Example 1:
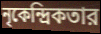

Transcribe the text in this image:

নৃকেন্দ্রিকতার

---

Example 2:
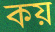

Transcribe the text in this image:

কয়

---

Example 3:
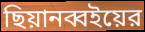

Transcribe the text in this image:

ছিয়ানব্বইয়ের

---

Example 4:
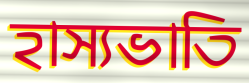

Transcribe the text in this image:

হাস্যভাতি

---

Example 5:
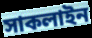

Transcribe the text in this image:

সাকলাইন